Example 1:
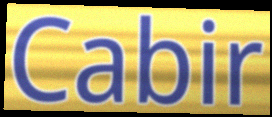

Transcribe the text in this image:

Cabir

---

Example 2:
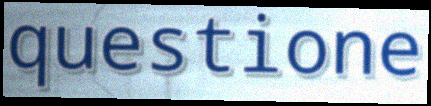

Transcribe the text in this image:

questione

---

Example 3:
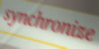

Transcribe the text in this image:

synchronize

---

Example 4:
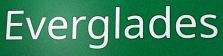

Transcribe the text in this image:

Everglades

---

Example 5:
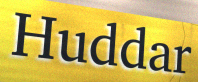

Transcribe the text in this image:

Huddar